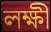
লক্ষী